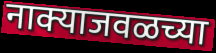
नाक्याजवळच्या